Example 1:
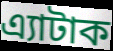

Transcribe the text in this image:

এ্যাটাক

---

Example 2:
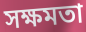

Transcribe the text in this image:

সক্ষমতা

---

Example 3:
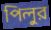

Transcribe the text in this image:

পিলুর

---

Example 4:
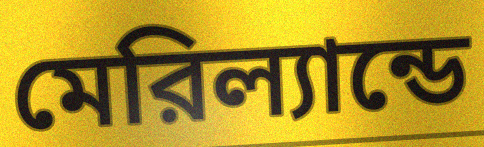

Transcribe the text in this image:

মেরিল্যান্ডে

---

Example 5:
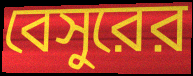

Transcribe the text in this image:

বেসুরের